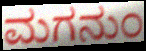
ಮಗನುಂ